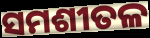
ସମଶୀତଳ